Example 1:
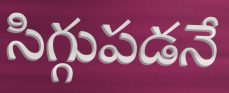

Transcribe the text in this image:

సిగ్గుపడనే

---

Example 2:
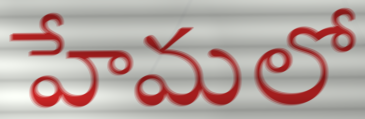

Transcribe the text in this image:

హేమలో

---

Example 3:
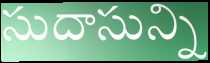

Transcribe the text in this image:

సుదాసున్ని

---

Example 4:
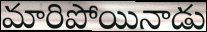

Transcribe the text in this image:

మారిపోయినాడు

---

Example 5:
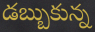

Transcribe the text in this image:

డబ్బుకున్న